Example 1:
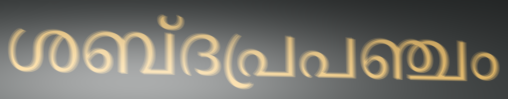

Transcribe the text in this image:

ശബ്ദപ്രപഞ്ചം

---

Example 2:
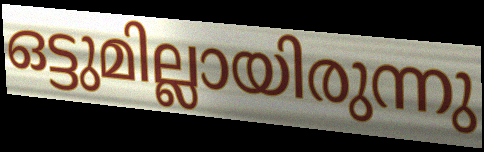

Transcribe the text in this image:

ഒട്ടുമില്ലായിരുന്നു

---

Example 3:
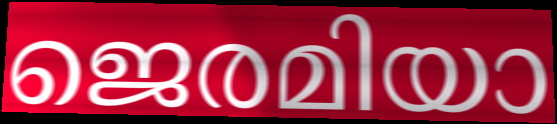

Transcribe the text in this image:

ജെരമിയാ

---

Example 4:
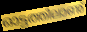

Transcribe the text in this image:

ഓട്ടത്തിലാണു്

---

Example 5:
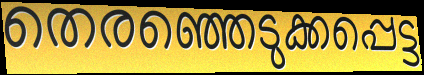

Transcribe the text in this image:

തെരഞ്ഞെടുക്കപ്പെട്ട